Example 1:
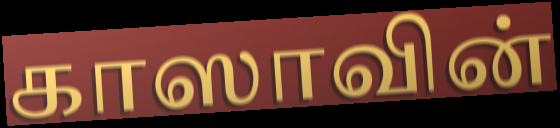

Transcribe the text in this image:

காஸாவின்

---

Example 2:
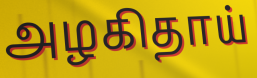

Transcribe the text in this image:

அழகிதாய்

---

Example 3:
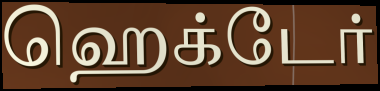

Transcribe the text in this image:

ஹெக்டேர்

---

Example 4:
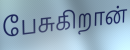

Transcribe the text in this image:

பேசுகிறான்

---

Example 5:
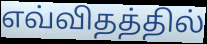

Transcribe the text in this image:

எவ்விதத்தில்